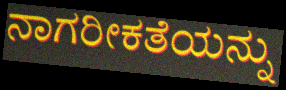
ನಾಗರೀಕತೆಯನ್ನು